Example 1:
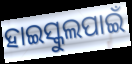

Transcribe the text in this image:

ହାଇସ୍କୁଲପାଇଁ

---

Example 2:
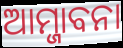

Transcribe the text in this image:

ଆମ୍ଜାବନା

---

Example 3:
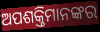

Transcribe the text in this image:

ଅପଶକ୍ତିମାନଙ୍କର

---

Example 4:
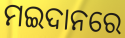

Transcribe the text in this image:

ମଇଦାନରେ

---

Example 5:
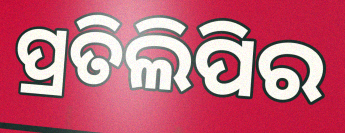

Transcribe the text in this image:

ପ୍ରତିଲିପିର